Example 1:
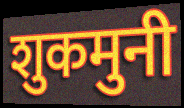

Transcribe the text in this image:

शुकमुनी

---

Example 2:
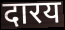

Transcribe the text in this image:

दारय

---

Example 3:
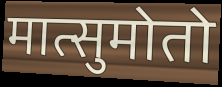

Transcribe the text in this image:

मात्सुमोतो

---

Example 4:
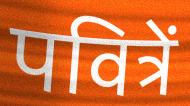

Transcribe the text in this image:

पवित्रें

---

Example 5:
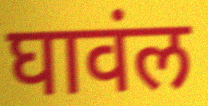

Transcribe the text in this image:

घावंल